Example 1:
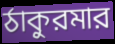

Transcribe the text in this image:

ঠাকুরমার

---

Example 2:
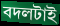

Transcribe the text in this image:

বদলটাই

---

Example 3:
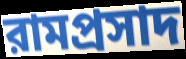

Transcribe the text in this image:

রামপ্রসাদ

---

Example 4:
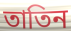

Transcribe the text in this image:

তাতিন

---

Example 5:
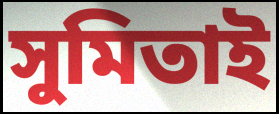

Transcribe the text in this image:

সুমিতাই